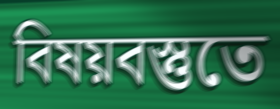
বিষয়বস্তুতে